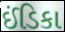
ઈંડિકા